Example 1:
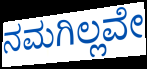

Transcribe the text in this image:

ನಮಗಿಲ್ಲವೇ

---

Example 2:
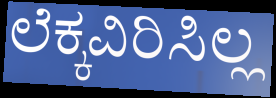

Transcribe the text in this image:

ಲೆಕ್ಕವಿರಿಸಿಲ್ಲ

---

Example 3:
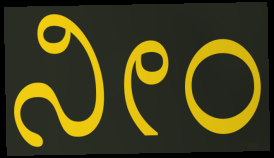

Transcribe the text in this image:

ನೀಂ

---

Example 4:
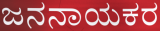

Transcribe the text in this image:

ಜನನಾಯಕರ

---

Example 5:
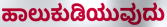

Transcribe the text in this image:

ಹಾಲುಕುಡಿಯುವುದು